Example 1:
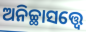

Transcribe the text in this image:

ଅନିଚ୍ଛାସତ୍ତ୍ବେ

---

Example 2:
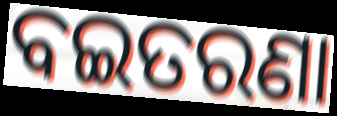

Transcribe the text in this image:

ବଇତରଣା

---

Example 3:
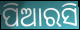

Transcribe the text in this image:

ପିଆରସି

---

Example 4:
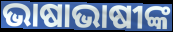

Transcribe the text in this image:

ଭାଷାଭାଷୀଙ୍କ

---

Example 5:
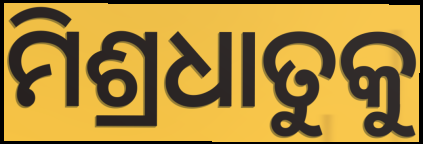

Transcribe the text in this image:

ମିଶ୍ରଧାତୁକୁ